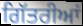
ਗਿੱਤਰੀਆਂ